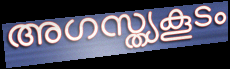
അഗസ്ത്യകൂടം